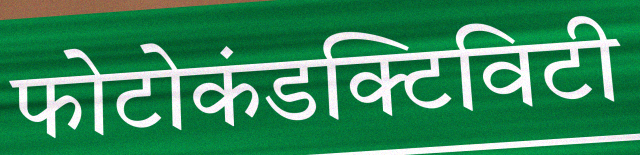
फोटोकंडक्टिविटी